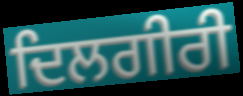
ਦਿਲਗੀਰੀ